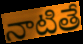
నాటితే